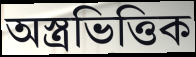
অস্ত্রভিত্তিক